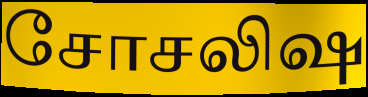
சோசலிஷ